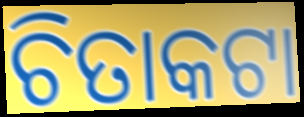
ଚିତାକଟା